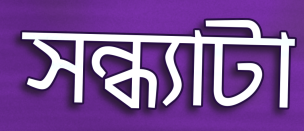
সন্ধ্যাটা